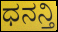
ಧನನ್ತಿ